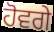
ਹੋਵਗੇ